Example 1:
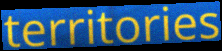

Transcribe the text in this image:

territories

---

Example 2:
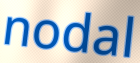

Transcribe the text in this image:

nodal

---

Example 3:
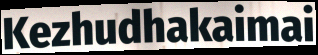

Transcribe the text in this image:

Kezhudhakaimai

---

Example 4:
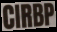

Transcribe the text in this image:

CIRBP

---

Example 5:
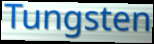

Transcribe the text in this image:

Tungsten